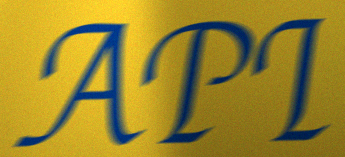
API